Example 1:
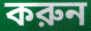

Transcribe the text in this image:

করুন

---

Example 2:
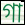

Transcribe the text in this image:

গা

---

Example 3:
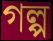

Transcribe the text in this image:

গল্প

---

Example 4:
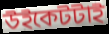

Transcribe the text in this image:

উইকেটটাই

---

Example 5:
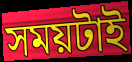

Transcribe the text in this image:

সময়টাই